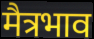
मैत्रभाव